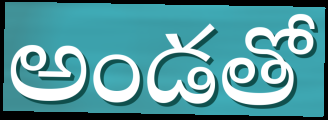
అండతో